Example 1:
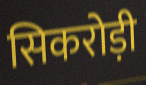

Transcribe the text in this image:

सिकरोड़ी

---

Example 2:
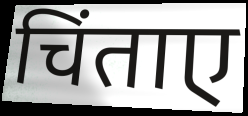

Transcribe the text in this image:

चिंताए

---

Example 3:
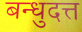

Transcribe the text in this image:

बन्धुदत्त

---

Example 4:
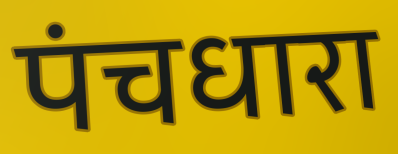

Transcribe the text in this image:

पंचधारा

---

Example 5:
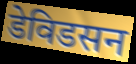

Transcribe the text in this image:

डेविडसन